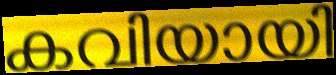
കവിയായി